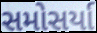
સમોસર્યા